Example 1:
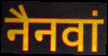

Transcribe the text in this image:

नैनवां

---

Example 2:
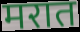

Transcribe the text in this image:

मरात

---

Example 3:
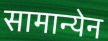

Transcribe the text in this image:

सामान्येन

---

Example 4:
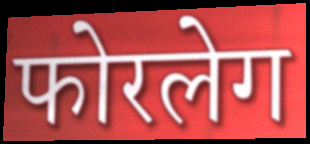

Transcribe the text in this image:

फोरलेग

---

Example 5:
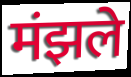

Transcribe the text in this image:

मंझले